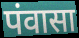
पंवासा